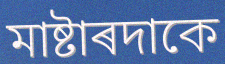
মাষ্টাৰদাকে